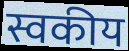
स्वकीय